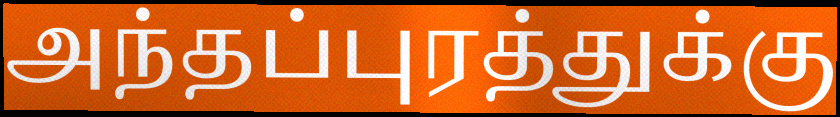
அந்தப்புரத்துக்கு